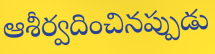
ఆశీర్వదించినప్పుడు